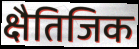
क्षैतिजिक